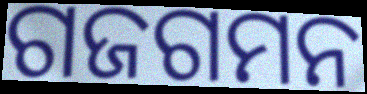
ଗଜଗମନ